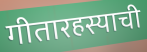
गीतारहस्याची